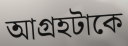
আগ্রহটাকে